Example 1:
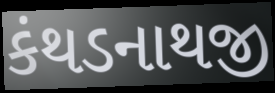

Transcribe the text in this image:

કંથડનાથજી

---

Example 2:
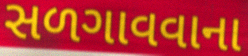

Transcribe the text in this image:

સળગાવવાના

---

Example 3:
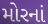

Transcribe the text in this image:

મોરનાં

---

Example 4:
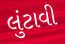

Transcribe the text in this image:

લુંટાવી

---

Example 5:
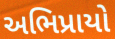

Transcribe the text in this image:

અભિપ્રાયો